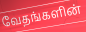
வேதங்களின்